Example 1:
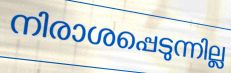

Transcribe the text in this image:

നിരാശപ്പെടുന്നില്ല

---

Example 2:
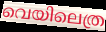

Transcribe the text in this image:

വെയിലെത്ര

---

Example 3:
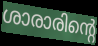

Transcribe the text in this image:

ശാരാരിന്റെ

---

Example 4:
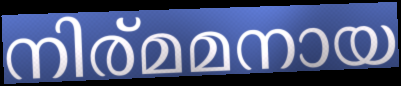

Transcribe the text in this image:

നിര്മമനായ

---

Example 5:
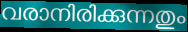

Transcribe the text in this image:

വരാനിരിക്കുന്നതും